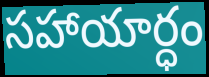
సహాయార్ధం